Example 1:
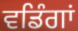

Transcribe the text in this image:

ਵਡਿੰਗਾਂ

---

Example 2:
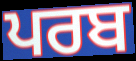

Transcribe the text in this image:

ਪਰਬ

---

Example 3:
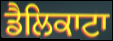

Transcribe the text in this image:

ਡੈਲਿਕਾਟਾ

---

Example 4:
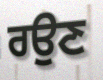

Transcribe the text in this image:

ਰਉਣ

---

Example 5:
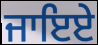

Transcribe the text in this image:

ਜਾਇਏ